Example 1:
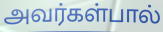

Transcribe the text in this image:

அவர்கள்பால்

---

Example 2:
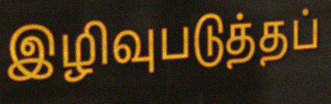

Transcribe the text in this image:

இழிவுபடுத்தப்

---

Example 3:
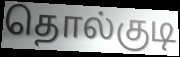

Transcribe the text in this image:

தொல்குடி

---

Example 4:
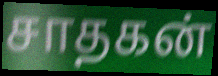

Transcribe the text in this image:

சாதகன்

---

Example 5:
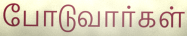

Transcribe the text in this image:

போடுவார்கள்